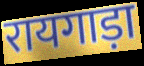
रायगाड़ा